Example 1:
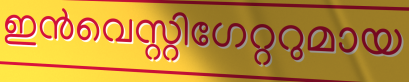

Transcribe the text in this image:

ഇൻവെസ്റ്റിഗേറ്ററുമായ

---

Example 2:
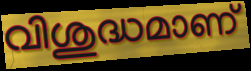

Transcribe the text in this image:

വിശുദ്ധമാണ്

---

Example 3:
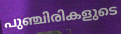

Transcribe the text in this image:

പുഞ്ചിരികളുടെ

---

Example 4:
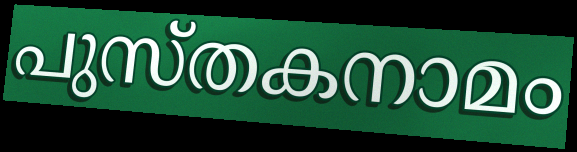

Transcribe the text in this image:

പുസ്തകനാമം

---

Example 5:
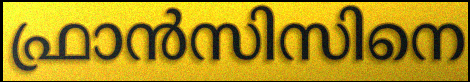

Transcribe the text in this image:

ഫ്രാൻസിസിനെ